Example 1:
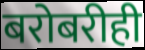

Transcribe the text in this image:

बरोबरीही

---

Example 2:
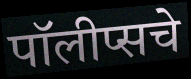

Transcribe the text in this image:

पॉलीप्सचे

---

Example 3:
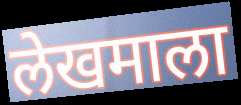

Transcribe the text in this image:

लेखमाला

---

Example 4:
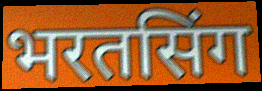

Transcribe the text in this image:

भरतसिंग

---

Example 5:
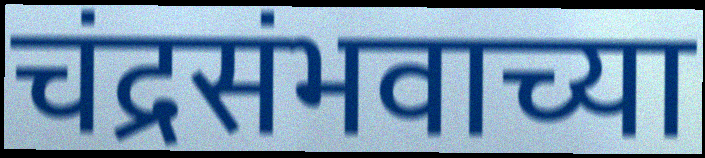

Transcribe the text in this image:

चंद्रसंभवाच्या